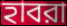
হাবরা